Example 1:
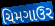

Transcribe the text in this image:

ચિમગાઉર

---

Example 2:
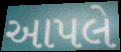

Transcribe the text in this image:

આપલે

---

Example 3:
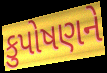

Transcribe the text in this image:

કુપોષણને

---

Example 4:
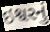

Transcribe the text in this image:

ઇશ્વરનું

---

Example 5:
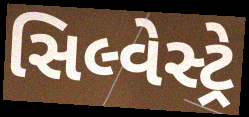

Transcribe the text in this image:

સિલ્વેસ્ટ્રે